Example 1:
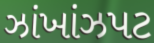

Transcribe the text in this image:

ઝાંખાંઝપટ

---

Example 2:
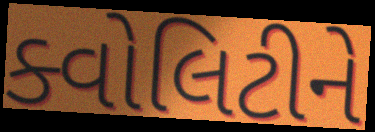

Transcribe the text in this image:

ક્વોલિટીને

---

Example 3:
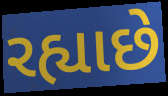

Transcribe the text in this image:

રહ્યાછે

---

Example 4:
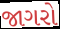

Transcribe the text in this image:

જાગરો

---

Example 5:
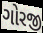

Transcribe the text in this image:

ગોરજી